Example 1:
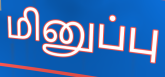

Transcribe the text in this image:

மினுப்பு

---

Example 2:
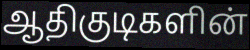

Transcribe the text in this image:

ஆதிகுடிகளின்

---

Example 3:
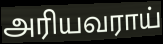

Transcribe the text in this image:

அரியவராய்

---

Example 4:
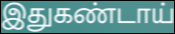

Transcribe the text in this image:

இதுகண்டாய்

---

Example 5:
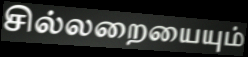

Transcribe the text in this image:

சில்லறையையும்